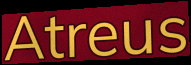
Atreus